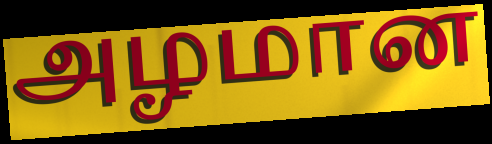
அழமான